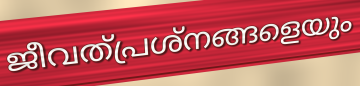
ജീവത്പ്രശ്നങ്ങളെയും